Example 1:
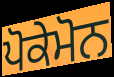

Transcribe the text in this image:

ਪੋਕੇਮੋਨ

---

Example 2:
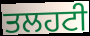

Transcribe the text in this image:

ਤਲਹਟੀ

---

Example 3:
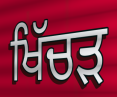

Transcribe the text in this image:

ਖਿੱਚੜ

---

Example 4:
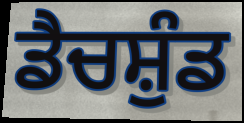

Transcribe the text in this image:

ਡੈਚਸ਼ੁੰਡ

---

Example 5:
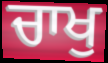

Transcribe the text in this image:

ਚਾਖੁ